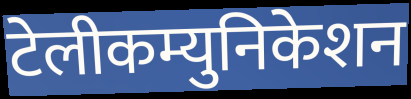
टेलीकम्युनिकेशन